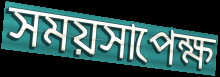
সময়সাপেক্ষ